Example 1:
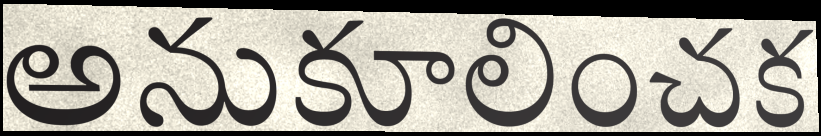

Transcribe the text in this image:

అనుకూలించక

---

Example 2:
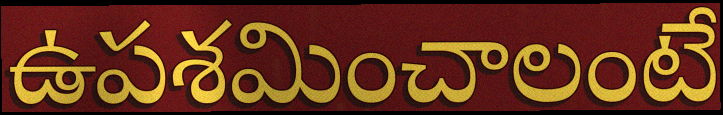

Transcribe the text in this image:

ఉపశమించాలంటే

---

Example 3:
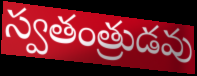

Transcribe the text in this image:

స్వతంత్రుడవు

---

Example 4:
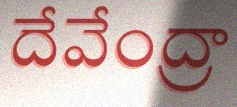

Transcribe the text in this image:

దేవేంద్రా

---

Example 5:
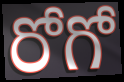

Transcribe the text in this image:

రోగో